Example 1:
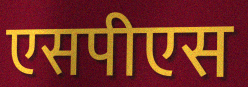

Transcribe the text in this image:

एसपीएस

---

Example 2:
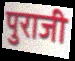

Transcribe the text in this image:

पुराजी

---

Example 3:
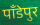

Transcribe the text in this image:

पाँडेपुर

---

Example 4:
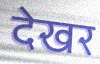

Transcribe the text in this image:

देखर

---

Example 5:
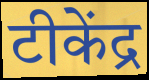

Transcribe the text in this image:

टीकेंद्र